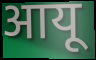
आयू